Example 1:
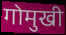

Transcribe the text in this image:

गोमुखी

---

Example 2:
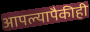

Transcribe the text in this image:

आपल्यापैकीही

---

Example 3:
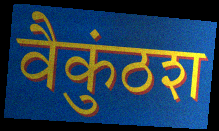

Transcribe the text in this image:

वैकुंठश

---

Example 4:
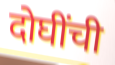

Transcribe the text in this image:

दोघींची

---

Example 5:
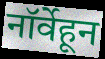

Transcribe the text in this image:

नॉर्वेहून